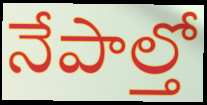
నేపాల్తో